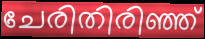
ചേരിതിരിഞ്ഞ്